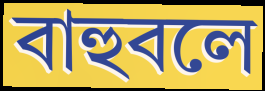
বাহুবলে